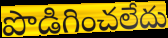
పొడిగించలేదు